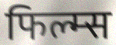
फिल्म्स